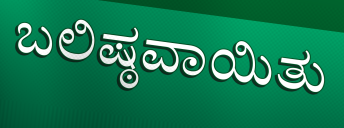
ಬಲಿಷ್ಠವಾಯಿತು